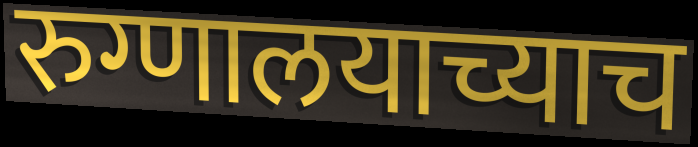
रुग्णालयाच्याच